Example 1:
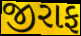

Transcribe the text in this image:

જીરાફ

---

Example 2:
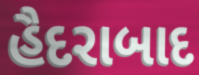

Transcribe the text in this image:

હૈદરાબાદ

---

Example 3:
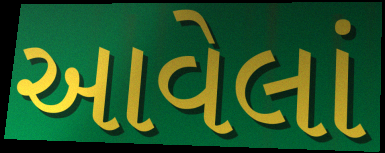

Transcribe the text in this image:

આવેલાં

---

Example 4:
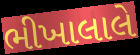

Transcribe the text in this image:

ભીખાલાલે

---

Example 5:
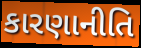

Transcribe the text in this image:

કારણાનીતિ